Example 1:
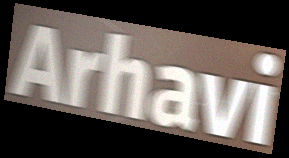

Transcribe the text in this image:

Arhavi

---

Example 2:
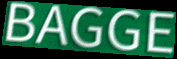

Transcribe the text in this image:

BAGGE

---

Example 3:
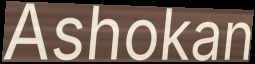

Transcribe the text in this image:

Ashokan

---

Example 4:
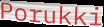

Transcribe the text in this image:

Porukki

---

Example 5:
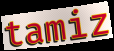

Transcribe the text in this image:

tamiz